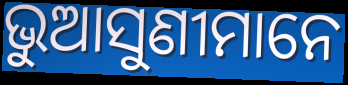
ଭୁଆସୁଣୀମାନେ